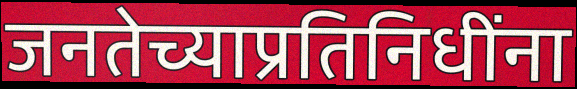
जनतेच्याप्रतिनिधींना